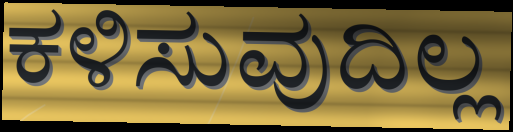
ಕಳಿಸುವುದಿಲ್ಲ